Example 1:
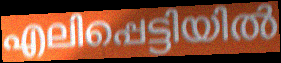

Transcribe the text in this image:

എലിപ്പെട്ടിയിൽ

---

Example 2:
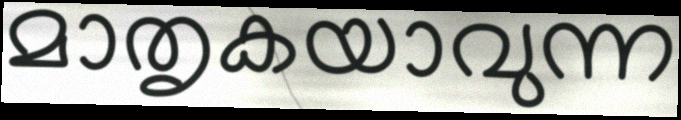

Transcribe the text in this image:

മാതൃകയാവുന്ന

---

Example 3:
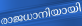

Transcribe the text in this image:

രാജധാനിയായി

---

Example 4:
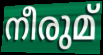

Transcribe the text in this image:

നീരുമ്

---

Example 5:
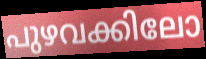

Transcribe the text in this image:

പുഴവക്കിലോ